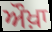
ਔਖ਼ਾ